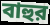
বাহুর